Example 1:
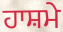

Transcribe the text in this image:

ਹਾਸ਼ਮੇ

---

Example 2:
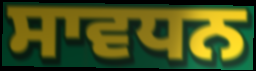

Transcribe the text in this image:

ਸਾਵਧਨ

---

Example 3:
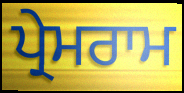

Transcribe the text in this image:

ਪ੍ਰੇਮਰਾਮ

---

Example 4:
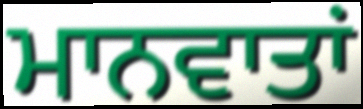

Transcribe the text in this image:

ਮਾਨਵਾਤਾਂ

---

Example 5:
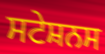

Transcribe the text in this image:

ਸਟੇਸ਼ਨਸ